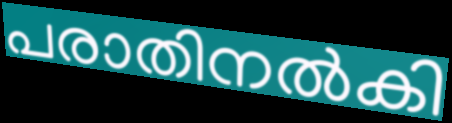
പരാതിനൽകി